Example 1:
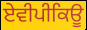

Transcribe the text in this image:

ਏਵੀਪੀਕਿਊ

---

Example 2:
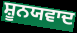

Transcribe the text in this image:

ਸ਼ੂਨਯਵਾਦ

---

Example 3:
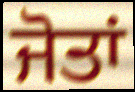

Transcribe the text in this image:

ਜੋਤਾਂ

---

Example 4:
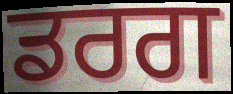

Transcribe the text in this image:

ਡਰਗ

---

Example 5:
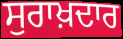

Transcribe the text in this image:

ਸੁਰਾਖ਼ਦਾਰ